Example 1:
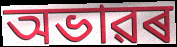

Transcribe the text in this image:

অভাৱৰ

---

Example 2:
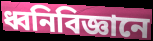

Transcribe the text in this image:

ধ্বনিবিজ্ঞানে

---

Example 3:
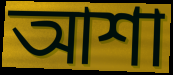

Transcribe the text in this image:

আশা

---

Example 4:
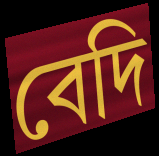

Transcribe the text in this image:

বেদি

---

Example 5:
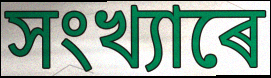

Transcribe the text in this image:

সংখ্যাৰে